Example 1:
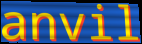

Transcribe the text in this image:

anvil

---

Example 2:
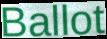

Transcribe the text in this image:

Ballot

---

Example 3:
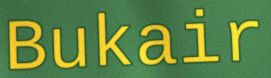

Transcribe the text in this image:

Bukair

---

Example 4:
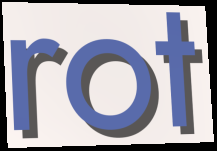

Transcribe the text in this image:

rot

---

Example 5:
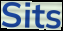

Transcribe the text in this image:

Sits